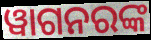
ୱାଗନରଙ୍କ